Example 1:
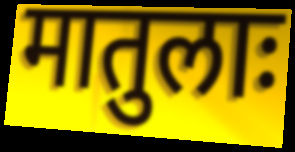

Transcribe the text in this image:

मातुलाः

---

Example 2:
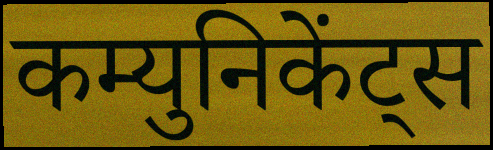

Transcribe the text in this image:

कम्युनिकेंट्स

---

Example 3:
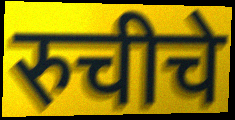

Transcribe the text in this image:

रुचीचे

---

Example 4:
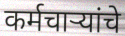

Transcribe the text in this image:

कर्मचाऱ्यांचे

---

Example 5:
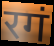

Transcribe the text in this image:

रगं